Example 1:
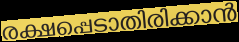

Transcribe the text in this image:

രക്ഷപ്പെടാതിരിക്കാൻ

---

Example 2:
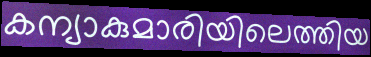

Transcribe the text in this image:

കന്യാകുമാരിയിലെത്തിയ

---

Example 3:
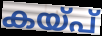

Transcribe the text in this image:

കയ്പ്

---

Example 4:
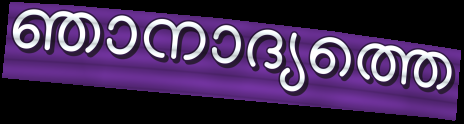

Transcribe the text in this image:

ഞാനാദ്യത്തെ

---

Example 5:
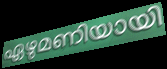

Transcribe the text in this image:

ഏഴുമണിയായി